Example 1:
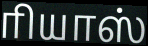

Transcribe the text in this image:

ரியாஸ்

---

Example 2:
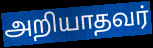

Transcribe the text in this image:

அறியாதவர்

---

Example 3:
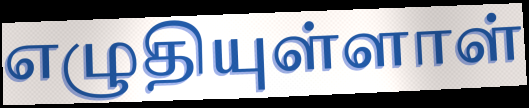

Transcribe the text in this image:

எழுதியுள்ளாள்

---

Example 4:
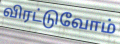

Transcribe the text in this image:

விரட்டுவோம்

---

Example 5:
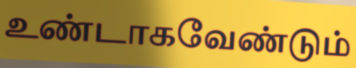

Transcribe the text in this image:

உண்டாகவேண்டும்